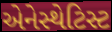
એનેસ્થેટિસ્ટ